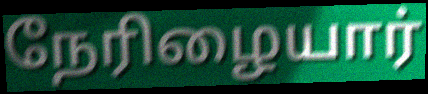
நேரிழையார்